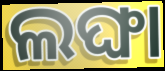
ଲଙ୍ଘା